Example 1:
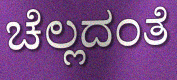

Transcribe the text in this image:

ಚೆಲ್ಲದಂತೆ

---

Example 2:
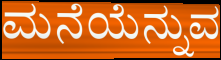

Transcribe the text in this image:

ಮನೆಯೆನ್ನುವ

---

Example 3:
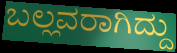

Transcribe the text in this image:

ಬಲ್ಲವರಾಗಿದ್ದು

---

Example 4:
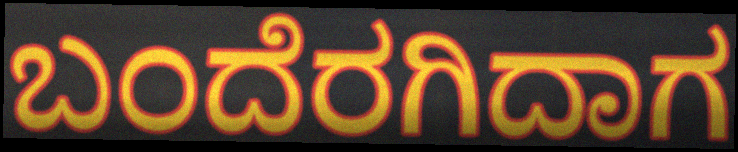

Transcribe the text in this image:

ಬಂದೆರಗಿದಾಗ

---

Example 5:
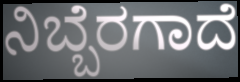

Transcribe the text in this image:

ನಿಬ್ಬೆರಗಾದೆ